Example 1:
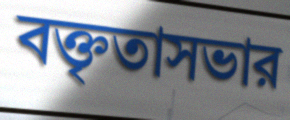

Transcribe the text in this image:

বক্তৃতাসভার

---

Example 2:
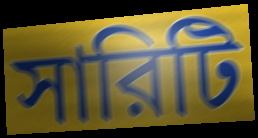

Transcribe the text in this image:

সারিটি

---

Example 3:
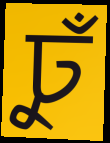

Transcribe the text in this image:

ঢুঁ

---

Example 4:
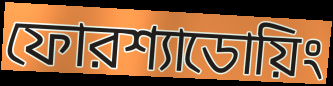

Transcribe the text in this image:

ফোরশ্যাডোয়িং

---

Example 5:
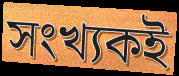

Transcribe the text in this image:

সংখ্যকই